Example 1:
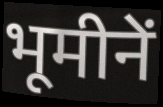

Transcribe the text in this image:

भूमीनें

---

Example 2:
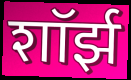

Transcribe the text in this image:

शॉर्झ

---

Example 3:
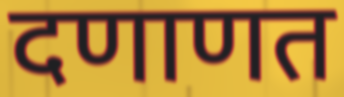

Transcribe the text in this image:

दणाणत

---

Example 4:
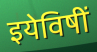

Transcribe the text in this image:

इयेविषीं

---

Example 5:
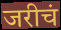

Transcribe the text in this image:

जरीचं